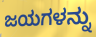
ಜಯಗಳನ್ನು